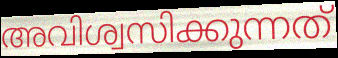
അവിശ്വസിക്കുന്നത്